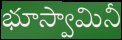
భూస్వామినీ